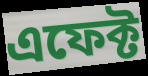
এফেক্ট